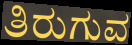
ತಿರುಗುವ